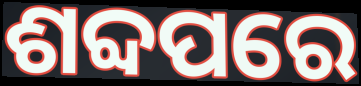
ଶବ୍ଦପରେ